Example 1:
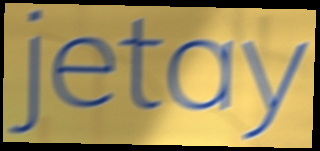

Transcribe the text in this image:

jetay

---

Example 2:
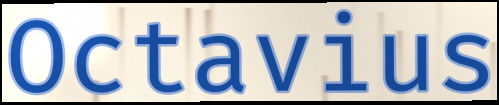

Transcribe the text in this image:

Octavius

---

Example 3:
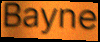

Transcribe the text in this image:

Bayne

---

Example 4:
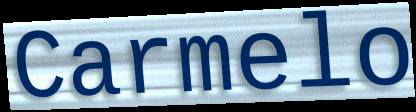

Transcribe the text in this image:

Carmelo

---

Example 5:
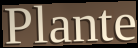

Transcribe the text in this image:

Plante